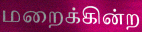
மறைக்கின்ற